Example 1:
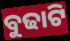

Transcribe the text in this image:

ବୁଢାଟି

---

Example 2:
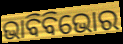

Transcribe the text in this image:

ଭାବିବିଭୋର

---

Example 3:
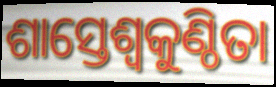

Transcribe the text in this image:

ଶାସ୍ତେଶ୍ବକୁଣ୍ଠିତା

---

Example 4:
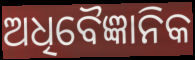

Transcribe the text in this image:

ଅଧିବୈଜ୍ଞାନିକ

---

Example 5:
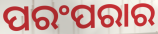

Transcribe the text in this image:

ପରଂପରାର